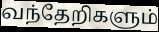
வந்தேறிகளும்